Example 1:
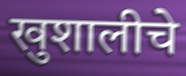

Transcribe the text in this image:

खुशालीचे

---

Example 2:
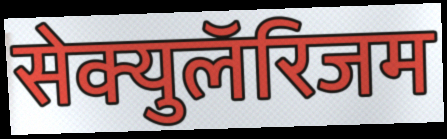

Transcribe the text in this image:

सेक्युलॅरिजम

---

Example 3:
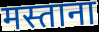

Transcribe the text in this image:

मस्ताना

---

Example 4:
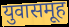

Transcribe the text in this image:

युवासमूह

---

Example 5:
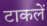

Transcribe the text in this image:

टाकलें